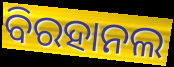
ବିରହାନଲ